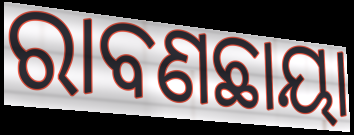
ରାବଣଛାୟା